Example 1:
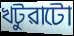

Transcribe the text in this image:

খটুৱাটো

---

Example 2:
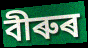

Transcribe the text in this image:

বীৰুৰ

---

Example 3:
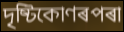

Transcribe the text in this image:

দৃষ্টিকোণৰপৰা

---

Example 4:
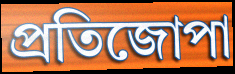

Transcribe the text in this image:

প্ৰতিজোপা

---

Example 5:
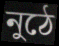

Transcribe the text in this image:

নুঠে